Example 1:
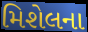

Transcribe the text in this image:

મિશેલના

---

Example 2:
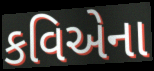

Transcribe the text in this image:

કવિએના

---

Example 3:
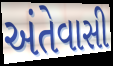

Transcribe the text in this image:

અંતેવાસી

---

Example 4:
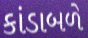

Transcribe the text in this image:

કાંડાબળે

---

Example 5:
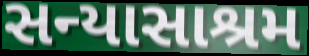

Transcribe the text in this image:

સન્યાસાશ્રમ